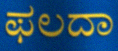
ಫಲದಾ